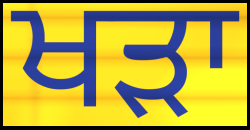
ਖੜਾ